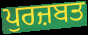
ਪੁਰਜ਼ਬਤ